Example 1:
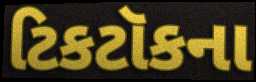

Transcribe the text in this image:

ટિકટૉકના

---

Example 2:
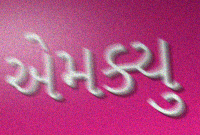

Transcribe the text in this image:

એમક્યુ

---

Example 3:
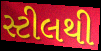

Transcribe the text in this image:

સ્ટીલથી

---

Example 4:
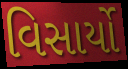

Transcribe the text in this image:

વિસાર્યો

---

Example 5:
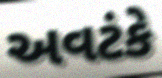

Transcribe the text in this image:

અવટંકે